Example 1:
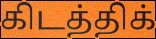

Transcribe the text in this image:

கிடத்திக்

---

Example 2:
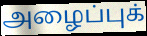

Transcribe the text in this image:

அழைப்புக்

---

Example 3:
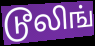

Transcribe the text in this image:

டூலிங்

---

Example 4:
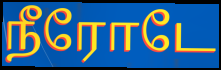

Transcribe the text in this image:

நீரோடே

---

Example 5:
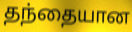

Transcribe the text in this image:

தந்தையான